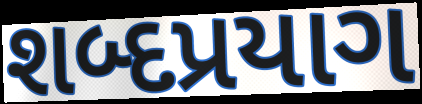
શબ્દપ્રયાગ